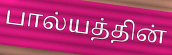
பால்யத்தின்